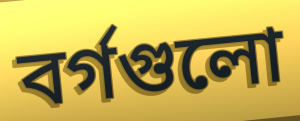
বর্গগুলো